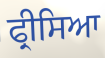
ਫ੍ਰੀਸਿਆ